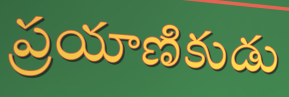
ప్రయాణికుడు